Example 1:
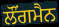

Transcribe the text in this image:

ਲੌਂਗਮੈਨ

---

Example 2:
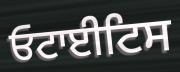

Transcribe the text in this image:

ਓਟਾਈਟਿਸ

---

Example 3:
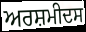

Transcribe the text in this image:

ਅਰਸ਼ਮੀਦਸ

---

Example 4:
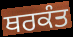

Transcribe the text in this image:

ਥਰਕੰਤ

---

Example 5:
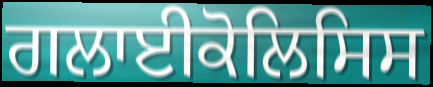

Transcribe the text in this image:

ਗਲਾਈਕੋਲਿਸਿਸ